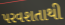
પરવશતાથી